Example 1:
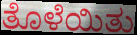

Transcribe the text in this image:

ತೊಳೆಯಿತು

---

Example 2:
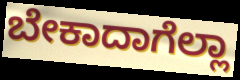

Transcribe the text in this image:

ಬೇಕಾದಾಗೆಲ್ಲಾ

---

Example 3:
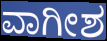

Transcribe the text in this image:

ವಾಗೀಶ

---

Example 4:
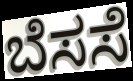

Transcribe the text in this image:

ಬೆಸಸೆ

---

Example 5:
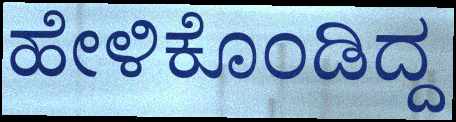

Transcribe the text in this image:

ಹೇಳಿಕೊಂಡಿದ್ದ